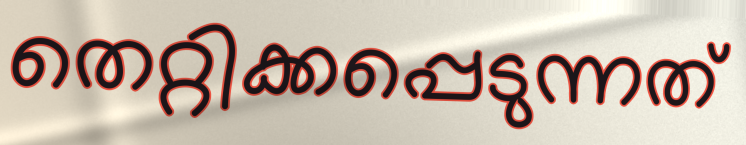
തെറ്റിക്കപ്പെടുന്നത്